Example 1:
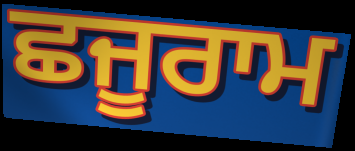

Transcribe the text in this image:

ਛਜੂਰਾਮ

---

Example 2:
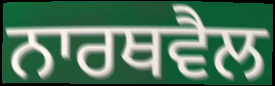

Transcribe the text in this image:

ਨਾਰਥਵੈਲ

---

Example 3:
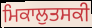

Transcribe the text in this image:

ਮਿਕਾਲੁਤਸਕੀ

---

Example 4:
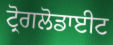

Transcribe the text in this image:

ਟ੍ਰੋਗਲੋਡਾਈਟ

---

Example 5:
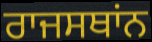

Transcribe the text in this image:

ਰਾਜਸਥਾਂਨ